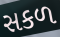
સકળ